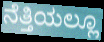
ನೆತ್ತಿಯಲ್ಲೂ